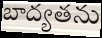
బాద్యతను